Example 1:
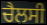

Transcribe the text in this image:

ਚੈਲਸੀ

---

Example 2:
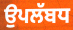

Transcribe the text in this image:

ਉਪਲੱਬਧ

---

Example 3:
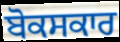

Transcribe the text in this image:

ਬੋਕਸਕਾਰ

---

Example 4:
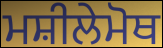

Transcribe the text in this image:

ਮਸ਼ੀਲੇਮੋਥ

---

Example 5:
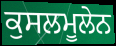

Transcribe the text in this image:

ਕੁਸਲਮੂਲੇਨ